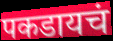
पकडायचं